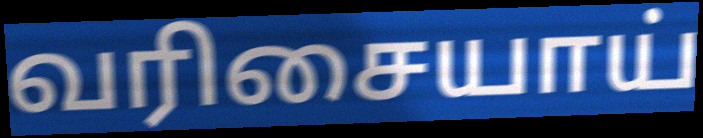
வரிசையாய்